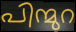
പിന്മുറ